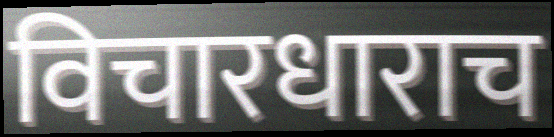
विचारधाराच